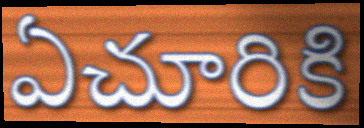
ఏచూరికి